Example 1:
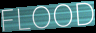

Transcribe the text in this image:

FLOOD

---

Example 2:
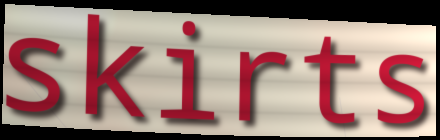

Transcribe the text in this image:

skirts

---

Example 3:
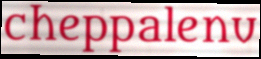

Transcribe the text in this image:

cheppalenu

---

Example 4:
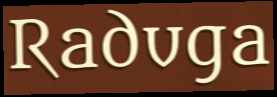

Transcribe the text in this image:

Raduga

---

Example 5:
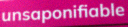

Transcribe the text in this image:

unsaponifiable